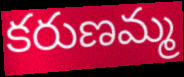
కరుణమ్మ